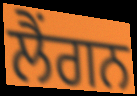
ਲੈਂਗਨ